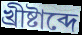
খ্রীষ্টাব্দে